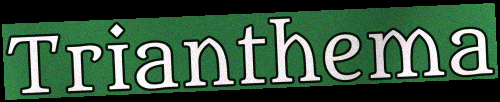
Trianthema